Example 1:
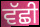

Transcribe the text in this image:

ਵੱਛੀ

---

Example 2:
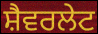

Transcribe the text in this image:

ਸ਼ੈਵਰਲੇਟ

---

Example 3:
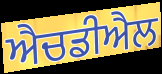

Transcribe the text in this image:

ਐਚਡੀਐਲ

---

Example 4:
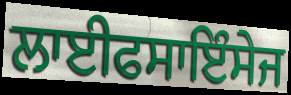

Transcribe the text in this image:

ਲਾਈਫਸਾਇੰਸੇਜ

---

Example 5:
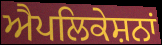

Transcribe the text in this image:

ਐਪਲਿਕੇਸ਼ਨਾਂ